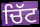
ਚਿੱਟ